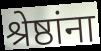
श्रेष्ठांना